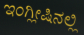
ಇಂಗ್ಲೀಷಿನಲ್ಲಿ